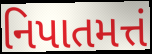
નિપાતમત્તં